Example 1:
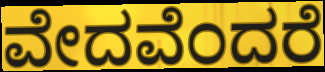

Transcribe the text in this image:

ವೇದವೆಂದರೆ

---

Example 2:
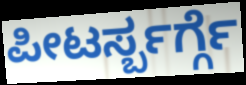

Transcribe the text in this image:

ಪೀಟರ್ಸ್ಬರ್ಗ್ಗೆ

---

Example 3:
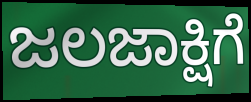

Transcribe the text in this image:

ಜಲಜಾಕ್ಷಿಗೆ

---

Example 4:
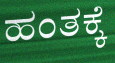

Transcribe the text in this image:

ಹಂತಕ್ಕೆ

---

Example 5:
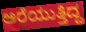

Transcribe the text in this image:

ಅರೆಯುತ್ತಿದ್ದ